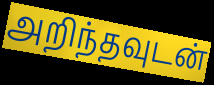
அறிந்தவுடன்